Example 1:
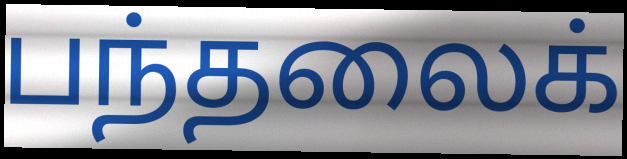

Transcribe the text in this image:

பந்தலைக்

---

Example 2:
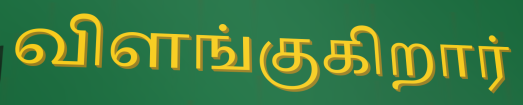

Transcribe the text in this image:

விளங்குகிறார்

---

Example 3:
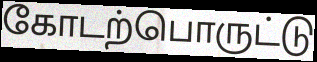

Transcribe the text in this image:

கோடற்பொருட்டு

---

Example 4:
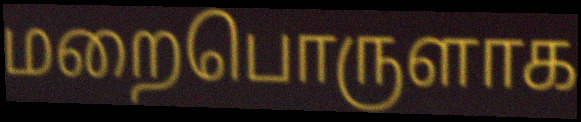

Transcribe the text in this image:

மறைபொருளாக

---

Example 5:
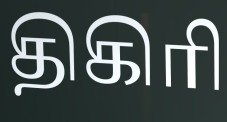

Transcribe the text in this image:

திகிரி